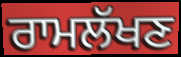
ਰਾਮਲੱਖਣ